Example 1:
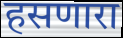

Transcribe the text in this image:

हसणारा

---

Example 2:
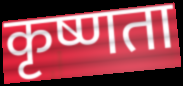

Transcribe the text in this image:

कृष्णता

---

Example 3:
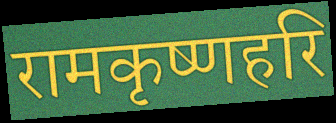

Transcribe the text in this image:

रामकृष्णहरि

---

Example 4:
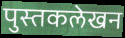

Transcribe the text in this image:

पुस्तकलेखन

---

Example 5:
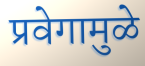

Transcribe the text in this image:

प्रवेगामुळे